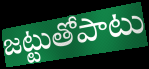
జట్టుతోపాటు